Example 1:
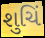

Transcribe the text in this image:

શુચિં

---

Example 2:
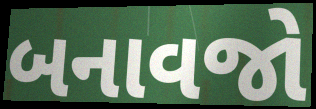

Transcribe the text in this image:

બનાવજો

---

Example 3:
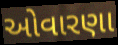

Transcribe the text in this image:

ઓવારણા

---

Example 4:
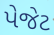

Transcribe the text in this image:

પેજેટ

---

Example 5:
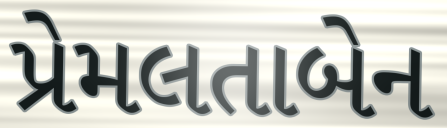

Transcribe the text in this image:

પ્રેમલતાબેન